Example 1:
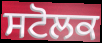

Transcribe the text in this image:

ਸਟੋਲਕ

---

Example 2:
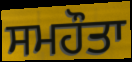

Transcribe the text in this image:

ਸਮਹੌਤਾ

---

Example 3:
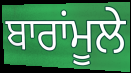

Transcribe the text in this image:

ਬਾਰਾਂਮੂਲੇ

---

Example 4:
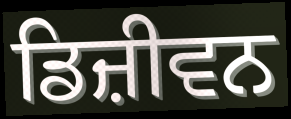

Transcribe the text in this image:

ਡਿਜ਼ੀਵਨ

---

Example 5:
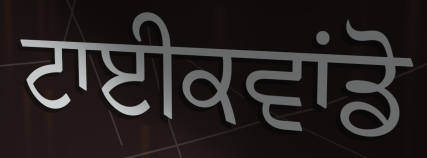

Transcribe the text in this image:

ਟਾਈਕਵਾਂਡੋ